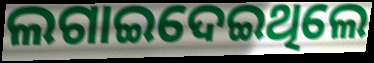
ଲଗାଇଦେଇଥିଲେ